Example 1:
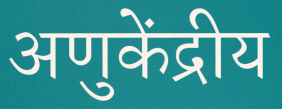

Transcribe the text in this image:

अणुकेंद्रीय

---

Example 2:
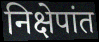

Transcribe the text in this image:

निक्षेपांत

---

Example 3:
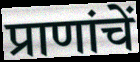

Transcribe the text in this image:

प्राणांचें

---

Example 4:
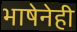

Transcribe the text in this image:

भाषेनेही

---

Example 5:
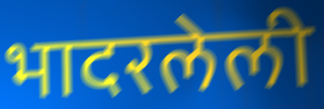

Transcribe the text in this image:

भादरलेली